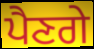
ਪੈਣਗੇ